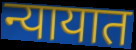
न्यायात